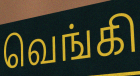
வெங்கி